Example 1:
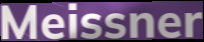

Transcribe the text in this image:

Meissner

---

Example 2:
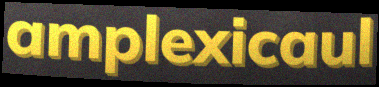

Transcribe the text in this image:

amplexicaul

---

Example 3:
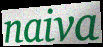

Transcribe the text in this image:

naiva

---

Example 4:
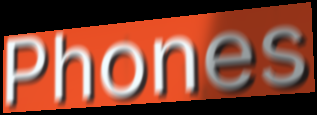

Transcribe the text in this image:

Phones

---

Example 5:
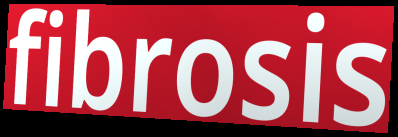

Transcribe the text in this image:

fibrosis